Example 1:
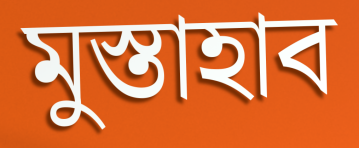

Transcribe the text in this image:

মুস্তাহাব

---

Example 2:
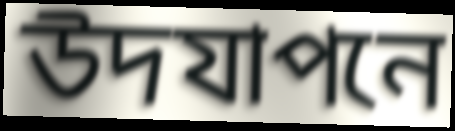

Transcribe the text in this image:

উদযাপনে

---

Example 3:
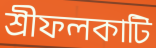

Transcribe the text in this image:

শ্রীফলকাটি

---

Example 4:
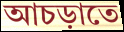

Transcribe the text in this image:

আচড়াতে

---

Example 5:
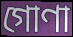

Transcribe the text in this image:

গোণা